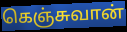
கெஞ்சுவான்